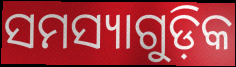
ସମସ୍ୟାଗୁଡ଼ିକ